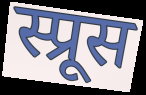
स्प्रूस